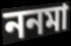
ননমা